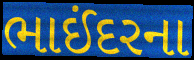
ભાઈંદરના